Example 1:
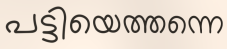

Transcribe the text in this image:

പട്ടിയെത്തന്നെ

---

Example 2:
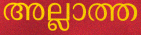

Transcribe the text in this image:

അല്ലാത്ത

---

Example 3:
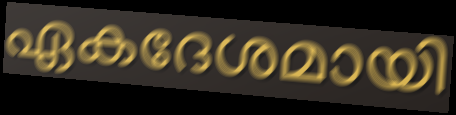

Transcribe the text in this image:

ഏകദേശമായി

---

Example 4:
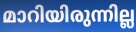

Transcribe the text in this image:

മാറിയിരുന്നില്ല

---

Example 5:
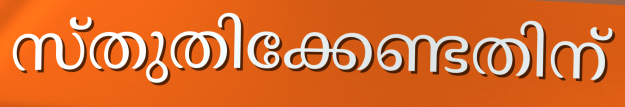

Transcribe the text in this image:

സ്തുതിക്കേണ്ടതിന്